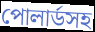
পোলার্ডসহ